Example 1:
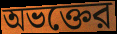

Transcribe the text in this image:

অভক্তের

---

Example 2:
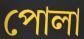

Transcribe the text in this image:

পোলা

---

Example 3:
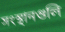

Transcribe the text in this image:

সংস্থানগুলি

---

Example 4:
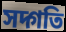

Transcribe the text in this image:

সদ্গতি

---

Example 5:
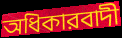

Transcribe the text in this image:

অধিকারবাদী